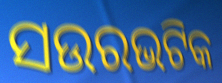
ସଉରଭଟିକ